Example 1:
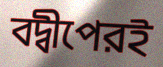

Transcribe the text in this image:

বদ্বীপেরই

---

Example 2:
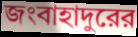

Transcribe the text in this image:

জংবাহাদুরের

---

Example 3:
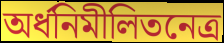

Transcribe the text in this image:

অর্ধনিমীলিতনেত্র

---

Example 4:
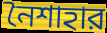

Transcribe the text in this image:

নৈশাহার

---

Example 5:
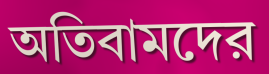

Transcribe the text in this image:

অতিবামদের